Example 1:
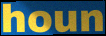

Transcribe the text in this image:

houn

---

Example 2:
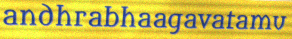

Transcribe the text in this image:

andhrabhaagavatamu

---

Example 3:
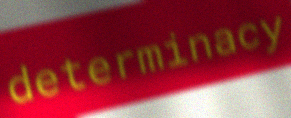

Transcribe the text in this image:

determinacy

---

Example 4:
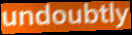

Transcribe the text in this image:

undoubtly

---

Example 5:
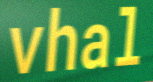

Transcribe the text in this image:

vhal